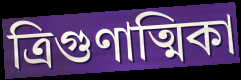
ত্রিগুণাত্মিকা